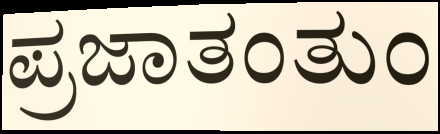
ಪ್ರಜಾತಂತುಂ